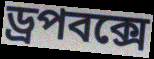
ড্রপবক্সে